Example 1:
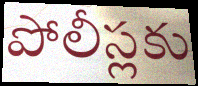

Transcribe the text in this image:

పోలీస్లకు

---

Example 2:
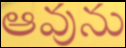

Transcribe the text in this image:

ఆవును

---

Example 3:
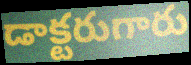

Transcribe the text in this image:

డాక్టరుగారు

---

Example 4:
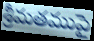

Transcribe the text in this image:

శ్రీమతముపై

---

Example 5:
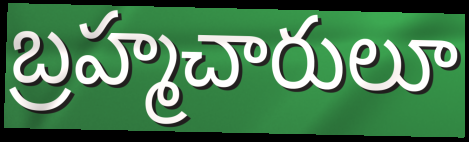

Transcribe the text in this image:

బ్రహ్మచారులూ